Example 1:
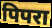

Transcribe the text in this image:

पिपरा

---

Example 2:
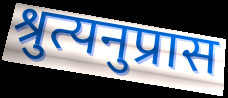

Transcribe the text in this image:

श्रुत्यनुप्रास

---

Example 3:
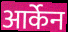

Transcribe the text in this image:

आर्केन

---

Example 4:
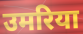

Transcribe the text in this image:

उमरिया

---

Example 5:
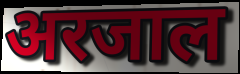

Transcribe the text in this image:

अरजाल